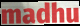
madhu